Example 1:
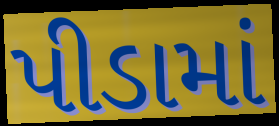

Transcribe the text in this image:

પીડામાં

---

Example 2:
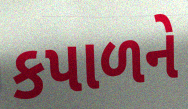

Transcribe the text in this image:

કપાળને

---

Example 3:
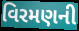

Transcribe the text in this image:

વિરમણની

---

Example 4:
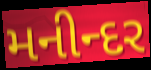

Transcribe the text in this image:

મનીન્દર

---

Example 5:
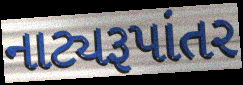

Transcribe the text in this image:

નાટ્યરૂપાંતર